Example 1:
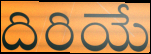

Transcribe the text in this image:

దిరియే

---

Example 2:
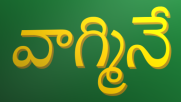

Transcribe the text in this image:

వాగ్మినే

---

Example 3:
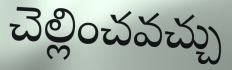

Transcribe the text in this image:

చెల్లించవచ్చు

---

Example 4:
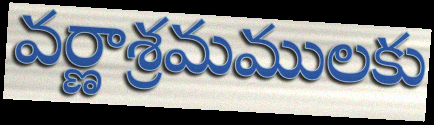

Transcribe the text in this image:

వర్ణాశ్రమములకు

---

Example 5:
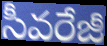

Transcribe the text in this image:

సీవరేజీ